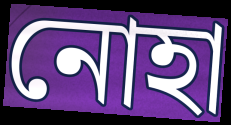
নোহা